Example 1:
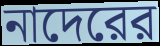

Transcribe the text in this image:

নাদেরের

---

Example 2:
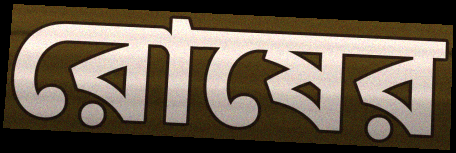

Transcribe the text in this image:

রোষের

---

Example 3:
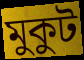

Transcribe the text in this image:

মুকুট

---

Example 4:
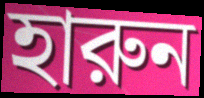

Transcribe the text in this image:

হারুন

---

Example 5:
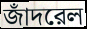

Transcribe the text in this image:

জাঁদরেল